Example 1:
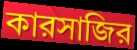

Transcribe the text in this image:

কারসাজির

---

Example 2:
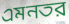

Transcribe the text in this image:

এমনতর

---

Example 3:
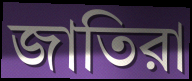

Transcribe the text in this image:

জাতিরা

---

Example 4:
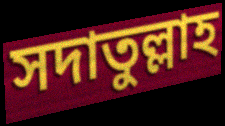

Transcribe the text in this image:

সদাতুল্লাহ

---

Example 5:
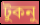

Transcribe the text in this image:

টুকনু